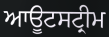
ਆਊਟਸਟ੍ਰੀਮ